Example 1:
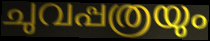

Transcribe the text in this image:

ചുവപ്പത്രയും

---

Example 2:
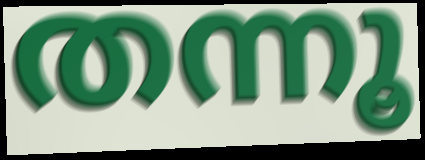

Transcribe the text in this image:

തന്നൂ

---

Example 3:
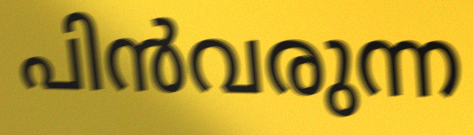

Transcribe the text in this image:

പിൻവരുന്ന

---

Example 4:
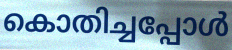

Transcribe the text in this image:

കൊതിച്ചപ്പോൾ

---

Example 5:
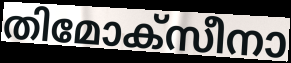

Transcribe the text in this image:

തിമോക്സീനാ